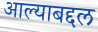
आल्याबद्दल